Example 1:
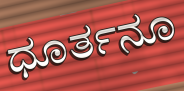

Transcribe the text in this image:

ಧೂರ್ತನೂ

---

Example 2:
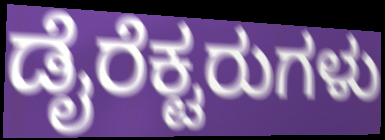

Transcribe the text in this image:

ಡೈರೆಕ್ಟರುಗಳು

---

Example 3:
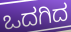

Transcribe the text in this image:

ಒದಗಿದ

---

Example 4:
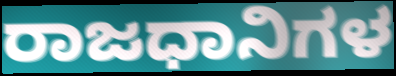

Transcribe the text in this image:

ರಾಜಧಾನಿಗಳ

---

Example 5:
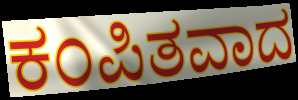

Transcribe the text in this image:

ಕಂಪಿತವಾದ